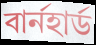
বার্নহার্ড